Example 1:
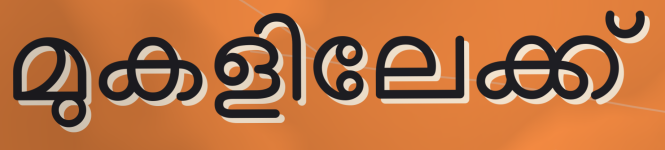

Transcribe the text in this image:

മുകളിലേക്ക്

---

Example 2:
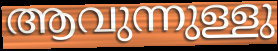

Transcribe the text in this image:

ആവുന്നുള്ളു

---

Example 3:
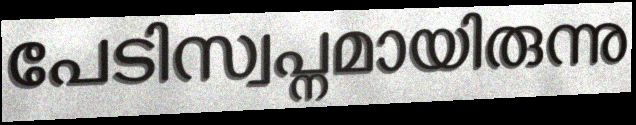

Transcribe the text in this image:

പേടിസ്വപ്നമായിരുന്നു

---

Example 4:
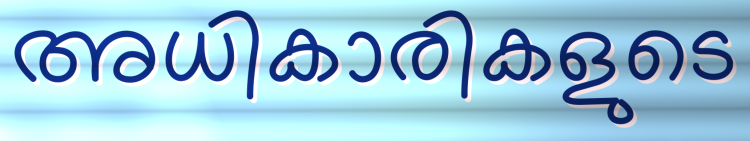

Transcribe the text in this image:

അധികാരികളുടെ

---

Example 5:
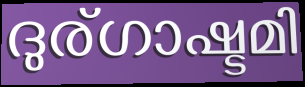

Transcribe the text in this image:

ദുര്ഗാഷ്ടമി